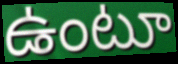
ఉంటూ